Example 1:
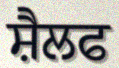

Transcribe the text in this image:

ਸ਼ੈਲਫ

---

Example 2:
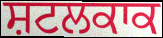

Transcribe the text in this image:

ਸ਼ਟਲਕਾਕ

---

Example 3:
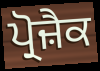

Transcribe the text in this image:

ਪ੍ਰੋਜ਼ੈਕ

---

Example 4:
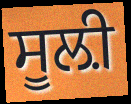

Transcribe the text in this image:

ਸੂਲ਼ੀ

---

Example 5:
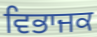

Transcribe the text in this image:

ਵਿਭਾਜਕ